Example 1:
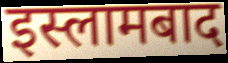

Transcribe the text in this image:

इस्लामबाद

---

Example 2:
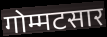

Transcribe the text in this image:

गोम्मटसार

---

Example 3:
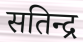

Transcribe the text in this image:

सतिन्द्र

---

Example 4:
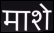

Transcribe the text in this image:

माशे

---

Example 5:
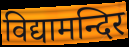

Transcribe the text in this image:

विद्यामन्दिर